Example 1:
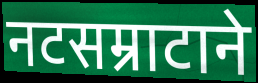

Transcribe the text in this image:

नटसम्राटाने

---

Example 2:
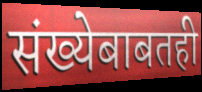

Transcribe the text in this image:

संख्येबाबतही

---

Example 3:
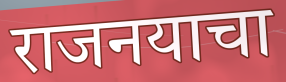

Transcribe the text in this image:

राजनयाचा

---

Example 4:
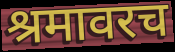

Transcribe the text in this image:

श्रमावरच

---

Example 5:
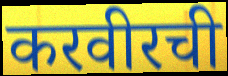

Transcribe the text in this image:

करवीरची